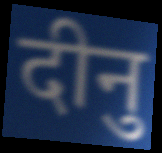
दीनु